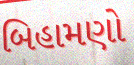
બિહામણો